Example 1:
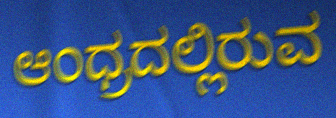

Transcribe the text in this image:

ಆಂಧ್ರದಲ್ಲಿರುವ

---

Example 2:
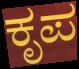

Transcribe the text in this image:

ಕೃಪ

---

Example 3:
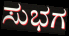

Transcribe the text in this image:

ಸುಭಗ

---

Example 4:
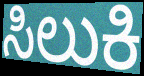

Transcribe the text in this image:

ಸಿಲುಕಿ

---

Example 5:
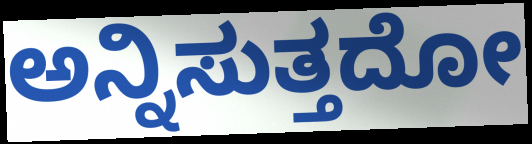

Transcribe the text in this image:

ಅನ್ನಿಸುತ್ತದೋ